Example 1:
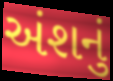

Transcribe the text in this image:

અંશનું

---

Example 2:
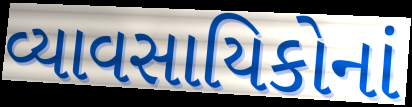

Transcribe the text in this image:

વ્યાવસાયિકોનાં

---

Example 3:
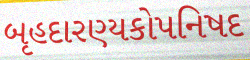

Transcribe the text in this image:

બૃહદારણ્યકોપનિષદ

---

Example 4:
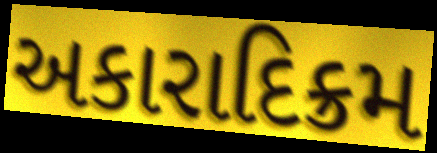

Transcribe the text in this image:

અકારાદિક્રમ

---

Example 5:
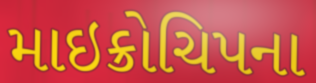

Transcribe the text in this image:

માઇક્રોચિપના